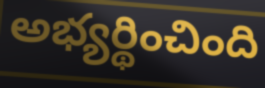
అభ్యర్థించింది